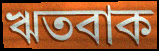
ঋতবাক